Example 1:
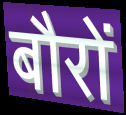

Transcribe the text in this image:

बौरों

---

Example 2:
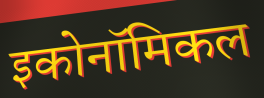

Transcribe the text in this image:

इकोनॉमिकल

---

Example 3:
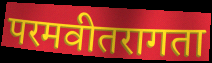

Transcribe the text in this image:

परमवीतरागता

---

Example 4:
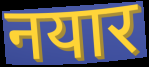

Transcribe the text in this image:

नयार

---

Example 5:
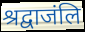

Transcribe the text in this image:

श्रद्वाजंलि